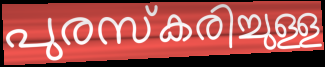
പുരസ്കരിച്ചുള്ള